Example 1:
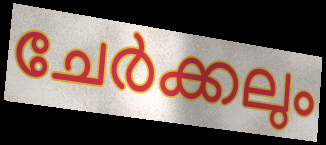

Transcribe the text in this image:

ചേർക്കലും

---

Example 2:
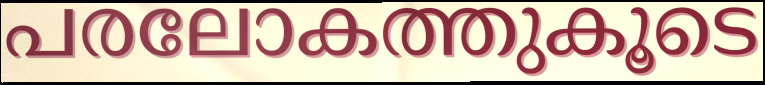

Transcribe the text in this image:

പരലോകത്തുകൂടെ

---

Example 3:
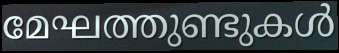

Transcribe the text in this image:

മേഘത്തുണ്ടുകൾ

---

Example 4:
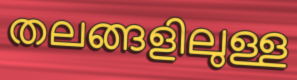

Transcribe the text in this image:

തലങ്ങളിലുള്ള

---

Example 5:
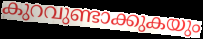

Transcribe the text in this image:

കുറവുണ്ടാക്കുകയും